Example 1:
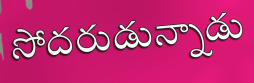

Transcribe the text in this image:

సోదరుడున్నాడు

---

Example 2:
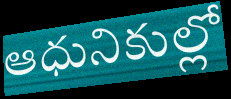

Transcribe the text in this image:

ఆధునికుల్లో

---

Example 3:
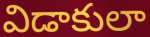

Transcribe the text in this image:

విడాకులా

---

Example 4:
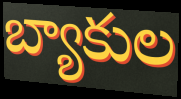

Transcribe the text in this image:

బ్యాకుల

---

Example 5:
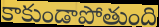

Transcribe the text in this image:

కాకుండాపోతుంది